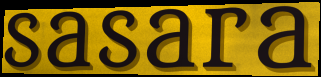
sasara